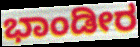
ಭಾಂಡೀರ